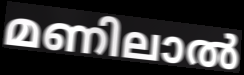
മണിലാൽ